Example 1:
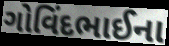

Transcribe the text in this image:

ગોવિંદભાઈના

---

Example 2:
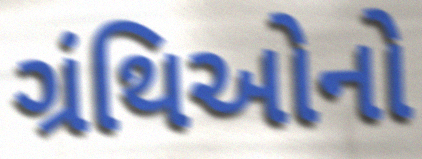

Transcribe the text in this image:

ગ્રંથિઓનો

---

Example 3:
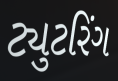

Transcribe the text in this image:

ટ્યુટરિંગ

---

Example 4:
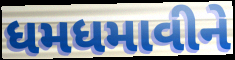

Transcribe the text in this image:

ધમધમાવીને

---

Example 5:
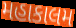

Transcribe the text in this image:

મહાકાલમ